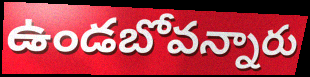
ఉండబోవన్నారు